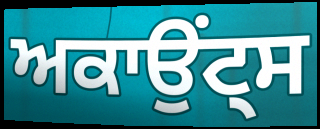
ਅਕਾਉਂਟ੍ਸ